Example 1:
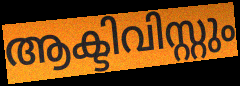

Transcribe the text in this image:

ആക്ടിവിസ്റ്റും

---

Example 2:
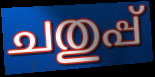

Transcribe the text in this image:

ചതുപ്പ്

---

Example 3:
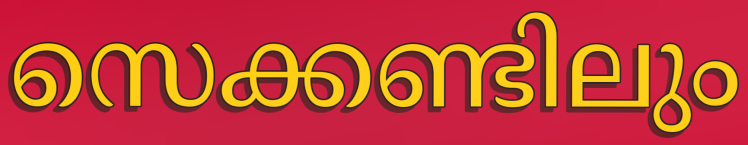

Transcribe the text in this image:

സെക്കണ്ടിലും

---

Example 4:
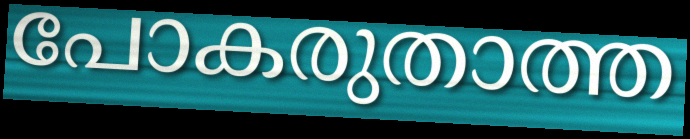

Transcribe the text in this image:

പോകരുതാത്ത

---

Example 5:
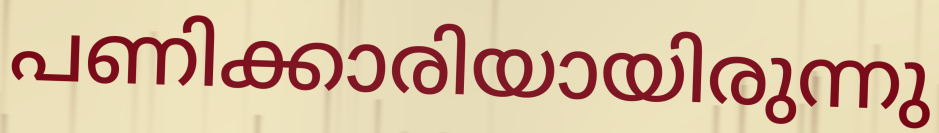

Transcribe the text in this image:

പണിക്കാരിയായിരുന്നു